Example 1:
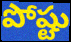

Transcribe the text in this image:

పోష్టు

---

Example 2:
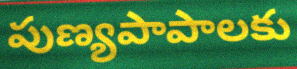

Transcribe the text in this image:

పుణ్యపాపాలకు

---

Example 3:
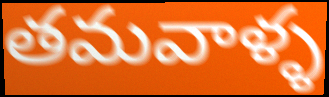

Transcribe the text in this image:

తమవాళ్ళ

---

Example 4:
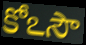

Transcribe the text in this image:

కోఽసౌ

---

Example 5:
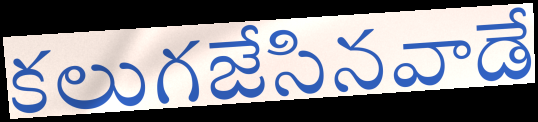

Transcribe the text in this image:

కలుగజేసినవాడే